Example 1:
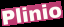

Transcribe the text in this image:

Plinio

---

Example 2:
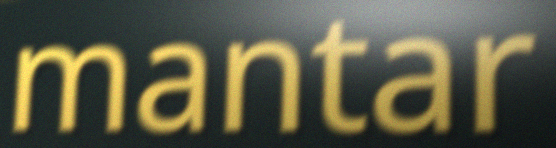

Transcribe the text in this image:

mantar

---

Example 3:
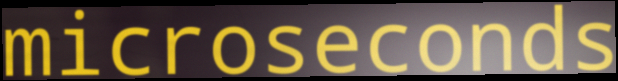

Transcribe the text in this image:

microseconds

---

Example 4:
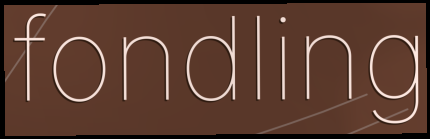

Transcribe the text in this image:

fondling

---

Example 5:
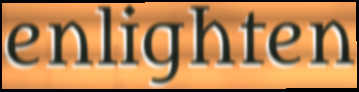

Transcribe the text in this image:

enlighten